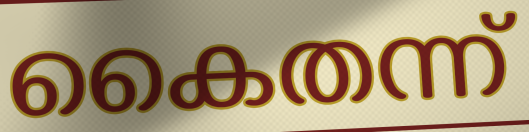
കൈതന്ന്